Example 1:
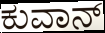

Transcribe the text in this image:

ಕುವಾನ್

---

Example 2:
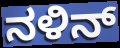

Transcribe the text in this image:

ನಳಿನ್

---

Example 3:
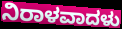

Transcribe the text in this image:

ನಿರಾಳವಾದಳು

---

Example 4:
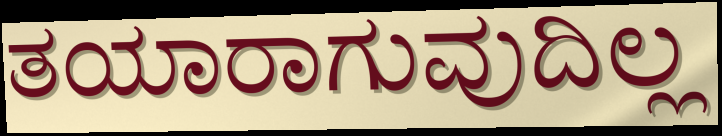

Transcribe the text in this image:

ತಯಾರಾಗುವುದಿಲ್ಲ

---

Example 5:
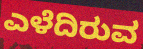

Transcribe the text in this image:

ಎಳೆದಿರುವ